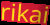
rikai